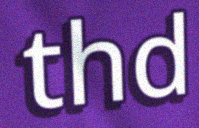
thd